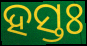
ହସ୍ତଃ